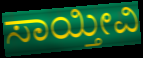
ಸಾಯ್ತೀವಿ